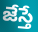
జేస్తే